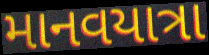
માનવયાત્રા